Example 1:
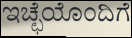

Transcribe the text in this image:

ಇಚ್ಛೆಯೊಂದಿಗೆ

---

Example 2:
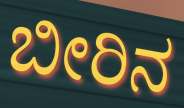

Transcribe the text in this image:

ಬೀರಿನ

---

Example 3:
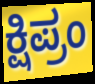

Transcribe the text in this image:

ಕ್ಷಿಪ್ರಂ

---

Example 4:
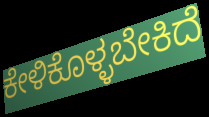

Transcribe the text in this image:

ಕೇಳಿಕೊಳ್ಳಬೇಕಿದೆ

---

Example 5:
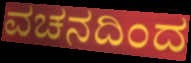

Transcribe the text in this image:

ವಚನದಿಂದ